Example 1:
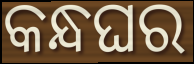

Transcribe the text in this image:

କନ୍ଧଘର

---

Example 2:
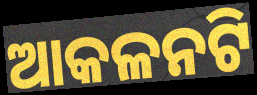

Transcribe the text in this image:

ଆକଳନଟି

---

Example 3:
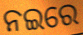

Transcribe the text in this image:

ନଇରେ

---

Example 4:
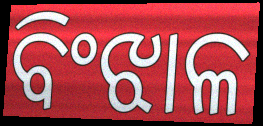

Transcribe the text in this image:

ବିଂଝାଳ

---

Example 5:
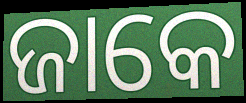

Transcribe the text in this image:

ଜାକେ